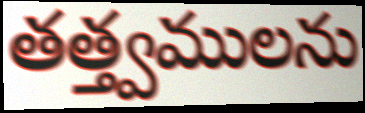
తత్త్వములను